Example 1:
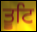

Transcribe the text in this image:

ਤੂਟਿ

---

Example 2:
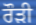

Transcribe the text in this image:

ਰੌੜੀ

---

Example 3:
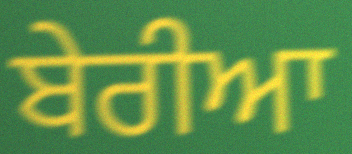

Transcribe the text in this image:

ਬੇਰੀਆ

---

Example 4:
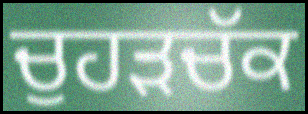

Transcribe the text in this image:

ਚੁਹੜਚੱਕ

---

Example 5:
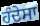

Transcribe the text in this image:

ਹੰਦੇਸਾ